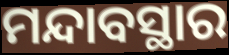
ମନ୍ଦାବସ୍ଥାର